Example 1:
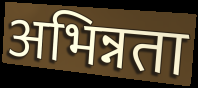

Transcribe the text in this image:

अभिन्नता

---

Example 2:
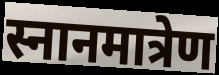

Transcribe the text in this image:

स्नानमात्रेण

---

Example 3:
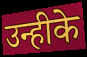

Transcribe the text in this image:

उन्हीके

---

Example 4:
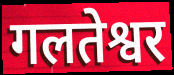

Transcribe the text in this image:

गलतेश्वर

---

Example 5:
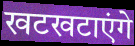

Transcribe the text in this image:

खटखटाएंगे